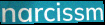
narcissm